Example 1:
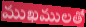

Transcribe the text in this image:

ముఖములతో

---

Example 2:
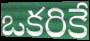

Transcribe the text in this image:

ఒకరికే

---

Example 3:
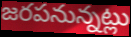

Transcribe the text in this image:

జరపనున్నట్లు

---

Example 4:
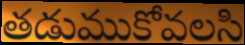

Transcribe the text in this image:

తడుముకోవలసి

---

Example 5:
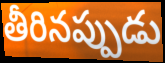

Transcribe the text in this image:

తీరినప్పుడు